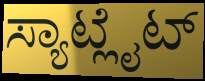
ಸ್ಯಾಟ್ಲೈಟ್